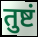
तुष्टं